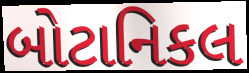
બોટાનિકલ